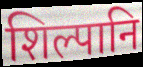
शिल्पानि